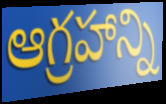
ఆగ్రహాన్ని